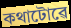
কথাটোৱে